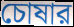
চোষার